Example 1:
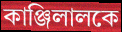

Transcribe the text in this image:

কাঞ্জিলালকে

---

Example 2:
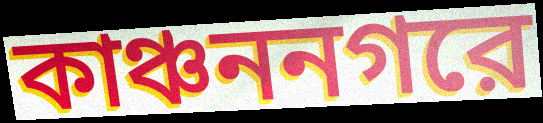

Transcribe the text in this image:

কাঞ্চননগরে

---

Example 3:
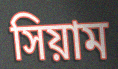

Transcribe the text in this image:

সিয়াম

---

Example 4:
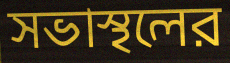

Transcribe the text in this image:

সভাস্থলের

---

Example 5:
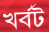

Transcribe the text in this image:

খর্বট